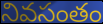
నివసంతం